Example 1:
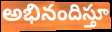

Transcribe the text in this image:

అభినందిస్తూ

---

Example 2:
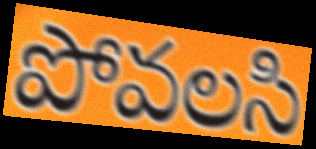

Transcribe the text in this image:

పోవలసి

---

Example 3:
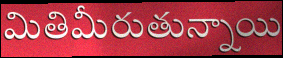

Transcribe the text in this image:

మితిమీరుతున్నాయి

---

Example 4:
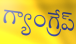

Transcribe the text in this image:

గ్యాంగ్రేప్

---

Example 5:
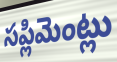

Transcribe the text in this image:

సప్లిమెంట్లు